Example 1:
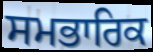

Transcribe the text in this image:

ਸਮਭਾਰਿਕ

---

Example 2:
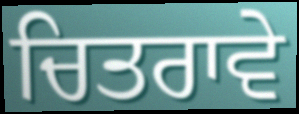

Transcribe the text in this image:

ਚਿਤਰਾਵੇ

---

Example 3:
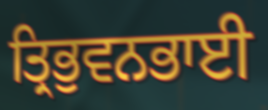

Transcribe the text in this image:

ਤ੍ਰਿਭੁਵਨਭਾਈ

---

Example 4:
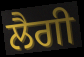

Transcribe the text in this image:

ਲੈਗੀ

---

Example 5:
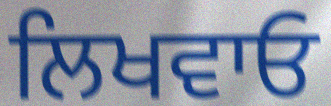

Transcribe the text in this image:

ਲਿਖਵਾਓ